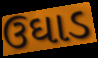
ઉઘાડ